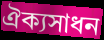
ঐক্যসাধন